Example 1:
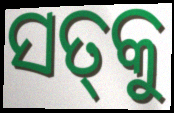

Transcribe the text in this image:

ସତ୍‌କୁ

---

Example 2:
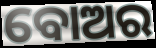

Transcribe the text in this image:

ବୋଅର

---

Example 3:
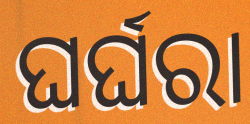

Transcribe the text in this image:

ଘର୍ଘରା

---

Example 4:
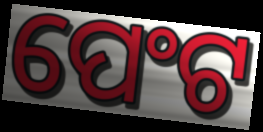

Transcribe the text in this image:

ପେଂଟ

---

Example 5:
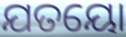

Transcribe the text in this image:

ଯତୟୋ